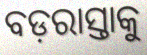
ବଡ଼ରାସ୍ତାକୁ